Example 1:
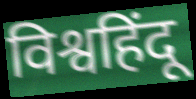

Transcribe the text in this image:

विश्वहिंदू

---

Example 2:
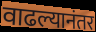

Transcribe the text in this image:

वाढल्यानंतर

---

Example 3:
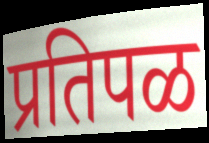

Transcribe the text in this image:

प्रतिपळ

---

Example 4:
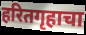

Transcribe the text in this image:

हरितगृहाचा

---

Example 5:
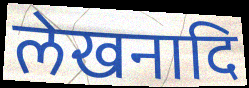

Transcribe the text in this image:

लेखनादि